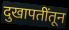
दुखापतींतून